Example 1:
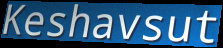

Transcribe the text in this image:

Keshavsut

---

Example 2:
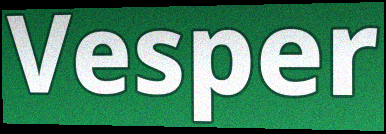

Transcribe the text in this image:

Vesper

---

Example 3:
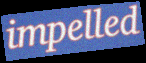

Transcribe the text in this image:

impelled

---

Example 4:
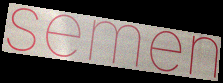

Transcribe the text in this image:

semen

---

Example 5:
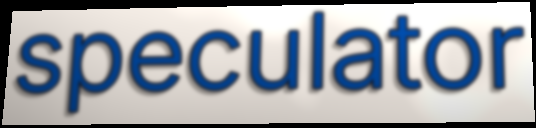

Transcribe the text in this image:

speculator